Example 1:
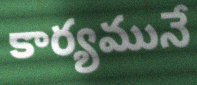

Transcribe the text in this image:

కార్యమునే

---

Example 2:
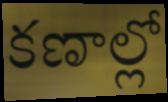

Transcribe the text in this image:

కణాల్లో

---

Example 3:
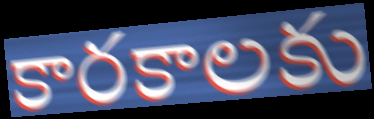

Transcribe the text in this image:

కారకాలకు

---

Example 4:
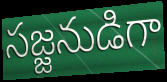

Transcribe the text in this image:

సజ్జనుడిగా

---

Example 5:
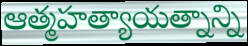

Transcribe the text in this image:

ఆత్మహత్యాయత్నాన్ని